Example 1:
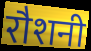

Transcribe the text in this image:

रौशनी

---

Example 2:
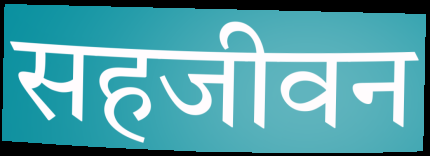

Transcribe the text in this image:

सहजीवन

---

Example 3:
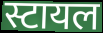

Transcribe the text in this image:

स्टायल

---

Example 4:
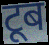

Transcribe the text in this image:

टूब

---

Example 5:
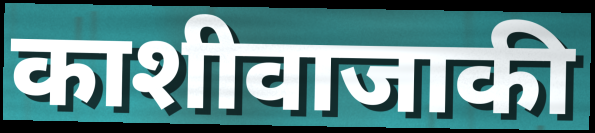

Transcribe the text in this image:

काशीवाजाकी